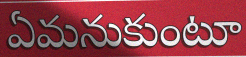
ఏమనుకుంటూ